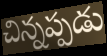
చిన్నప్పడు